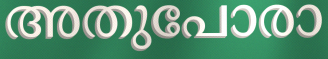
അതുപോരാ